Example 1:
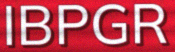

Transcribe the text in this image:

IBPGR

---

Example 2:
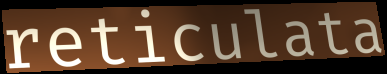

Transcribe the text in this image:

reticulata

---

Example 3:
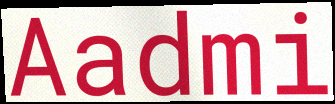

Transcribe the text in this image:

Aadmi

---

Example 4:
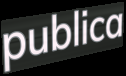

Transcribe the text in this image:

publica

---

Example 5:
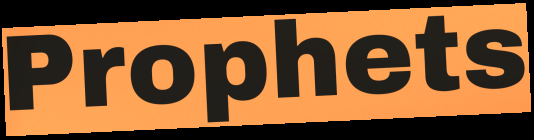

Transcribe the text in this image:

Prophets